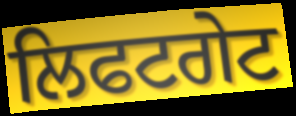
ਲਿਫਟਗੇਟ